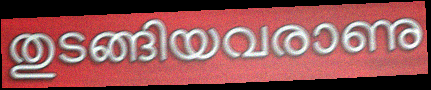
തുടങ്ങിയവരാണു